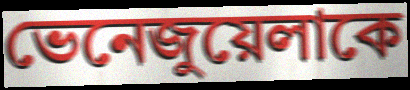
ভেনেজুয়েলাকে